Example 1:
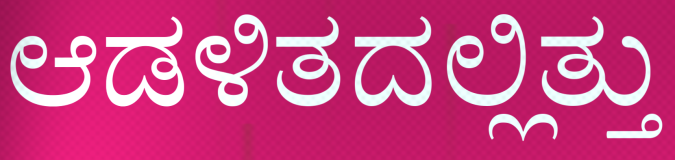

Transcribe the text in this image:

ಆಡಳಿತದಲ್ಲಿತ್ತು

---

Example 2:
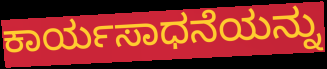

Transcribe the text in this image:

ಕಾರ್ಯಸಾಧನೆಯನ್ನು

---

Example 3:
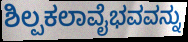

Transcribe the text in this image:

ಶಿಲ್ಪಕಲಾವೈಭವವನ್ನು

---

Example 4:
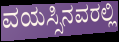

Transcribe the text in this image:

ವಯಸ್ಸಿನವರಲ್ಲಿ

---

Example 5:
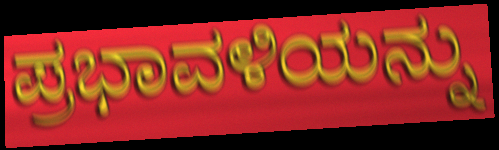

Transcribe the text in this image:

ಪ್ರಭಾವಳಿಯನ್ನು